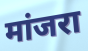
मांजरा